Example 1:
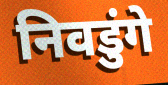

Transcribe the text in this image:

निवडुंगे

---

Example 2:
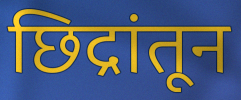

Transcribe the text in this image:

छिद्रांतून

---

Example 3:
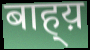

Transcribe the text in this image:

बाह्य़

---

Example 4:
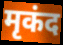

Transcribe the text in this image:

मृकंद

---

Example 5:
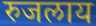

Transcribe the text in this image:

रुजलाय